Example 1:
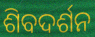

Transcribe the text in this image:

ଶିବଦର୍ଶନ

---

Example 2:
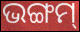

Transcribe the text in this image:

ଭଙ୍ଗମ୍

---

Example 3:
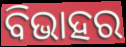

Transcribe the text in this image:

ବିଭାହର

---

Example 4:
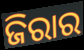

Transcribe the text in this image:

ଜିରାର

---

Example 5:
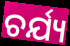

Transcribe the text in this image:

ଚର୍ଯ୍ୟ